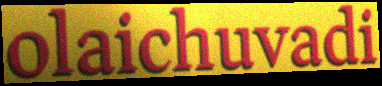
olaichuvadi